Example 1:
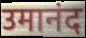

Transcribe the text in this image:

उमानंद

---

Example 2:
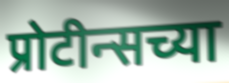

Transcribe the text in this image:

प्रोटीन्सच्या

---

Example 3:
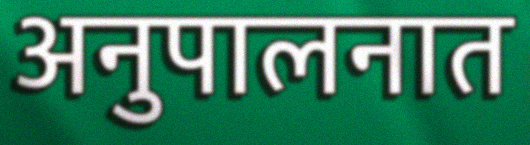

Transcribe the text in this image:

अनुपालनात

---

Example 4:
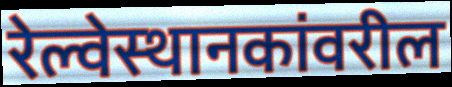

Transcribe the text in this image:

रेल्वेस्थानकांवरील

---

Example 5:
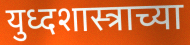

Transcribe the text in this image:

युध्दशास्त्राच्या